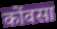
कोंवसा